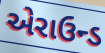
એરાઉન્ડ